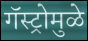
गॅस्ट्रोमुळे